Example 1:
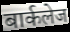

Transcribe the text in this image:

बार्कलेज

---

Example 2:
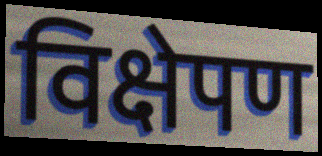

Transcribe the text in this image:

विक्षेपण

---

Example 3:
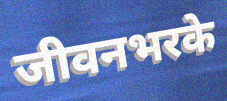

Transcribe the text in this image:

जीवनभरके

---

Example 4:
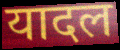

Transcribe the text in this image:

यादल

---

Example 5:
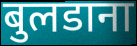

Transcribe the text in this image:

बुलडाना